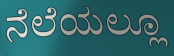
ನೆಲೆಯಲ್ಲೂ